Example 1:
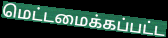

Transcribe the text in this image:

மெட்டமைக்கப்பட்ட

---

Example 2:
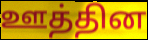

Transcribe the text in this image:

ஊத்தின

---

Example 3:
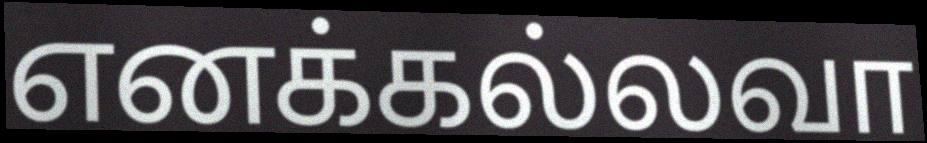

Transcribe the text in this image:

எனக்கல்லவா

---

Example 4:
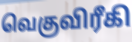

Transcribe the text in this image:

வெகுவிரீகி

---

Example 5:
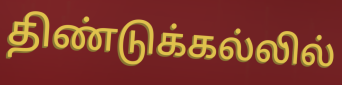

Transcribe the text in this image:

திண்டுக்கல்லில்